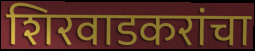
शिरवाडकरांचा